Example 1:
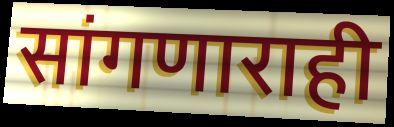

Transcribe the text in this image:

सांगणाराही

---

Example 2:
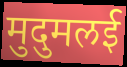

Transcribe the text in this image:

मुदुमलई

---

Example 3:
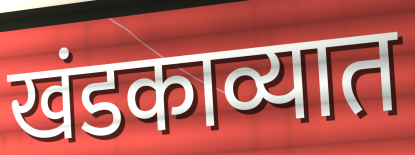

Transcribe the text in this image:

खंडकाव्यात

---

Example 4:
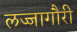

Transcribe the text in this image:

लज्जागौरी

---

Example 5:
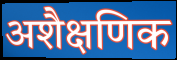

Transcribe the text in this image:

अशैक्षणिक